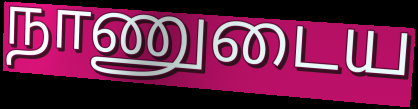
நாணுடைய